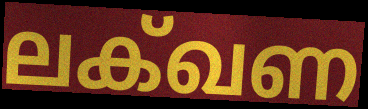
ലക്ഖണ